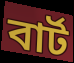
বার্ট